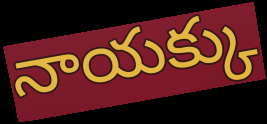
నాయక్కు